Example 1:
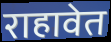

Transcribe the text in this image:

राहावेत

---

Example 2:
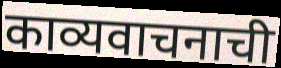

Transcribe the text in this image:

काव्यवाचनाची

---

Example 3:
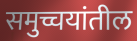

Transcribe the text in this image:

समुच्चयांतील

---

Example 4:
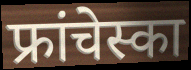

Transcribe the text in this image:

फ्रांचेस्का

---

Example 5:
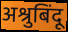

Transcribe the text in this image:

अश्रुबिंदू